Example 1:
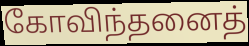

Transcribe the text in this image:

கோவிந்தனைத்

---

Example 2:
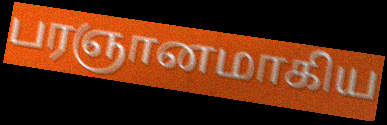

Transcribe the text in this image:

பரஞானமாகிய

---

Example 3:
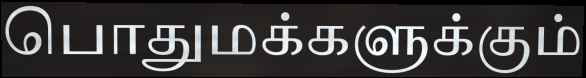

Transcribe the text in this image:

பொதுமக்களுக்கும்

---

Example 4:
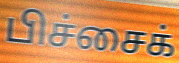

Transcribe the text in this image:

பிச்சைக்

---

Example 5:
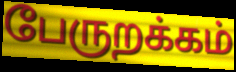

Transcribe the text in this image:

பேருறக்கம்